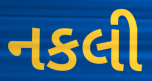
નકલી